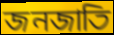
জনজাতি